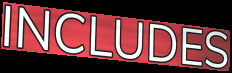
INCLUDES